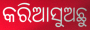
କରିଆସୁଅଛୁ